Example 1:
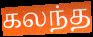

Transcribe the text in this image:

கலந்த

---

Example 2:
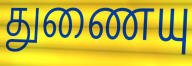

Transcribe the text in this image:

துணையு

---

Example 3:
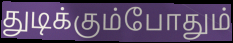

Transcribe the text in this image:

துடிக்கும்போதும்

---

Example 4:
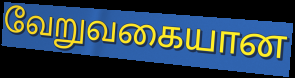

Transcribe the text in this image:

வேறுவகையான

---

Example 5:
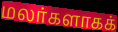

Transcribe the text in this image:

மலர்களாகக்